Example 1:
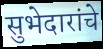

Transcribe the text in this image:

सुभेदारांचे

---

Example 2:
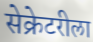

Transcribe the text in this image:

सेक्रेटरीला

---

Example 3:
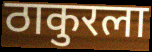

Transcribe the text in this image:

ठाकुरला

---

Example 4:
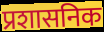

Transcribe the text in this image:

प्रशासनिक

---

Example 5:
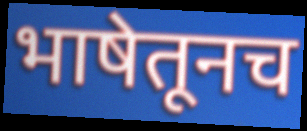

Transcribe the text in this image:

भाषेतूनच